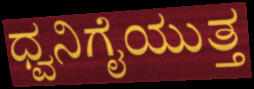
ಧ್ವನಿಗೈಯುತ್ತ